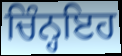
ਚਿੰਨ੍ਹਇਹ